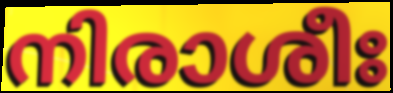
നിരാശീഃ